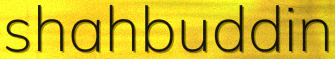
shahbuddin